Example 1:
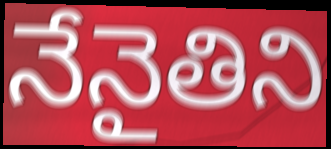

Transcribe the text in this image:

నేనైతిని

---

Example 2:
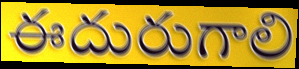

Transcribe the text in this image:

ఈదురుగాలి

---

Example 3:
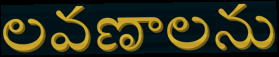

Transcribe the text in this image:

లవణాలను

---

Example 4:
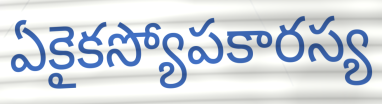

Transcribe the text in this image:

ఏకైకస్యోపకారస్య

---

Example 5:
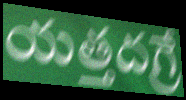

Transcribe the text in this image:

యత్తదగ్రే